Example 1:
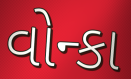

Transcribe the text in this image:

વોન્કા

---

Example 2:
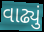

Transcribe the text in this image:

વાઢ્યું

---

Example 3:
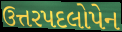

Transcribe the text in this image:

ઉત્તરપદલોપેન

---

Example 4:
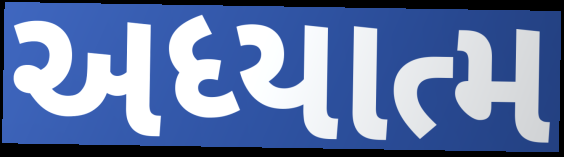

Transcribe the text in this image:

અધ્યાત્મ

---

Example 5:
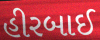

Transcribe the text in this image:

હીરબાઈ